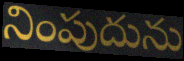
నింపుదును